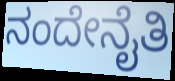
ನಂದೇನೈತಿ